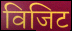
विजिट